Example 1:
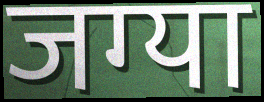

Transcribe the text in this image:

जग्या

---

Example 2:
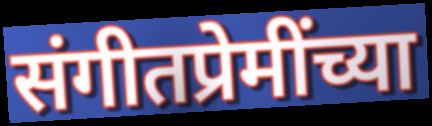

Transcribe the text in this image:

संगीतप्रेमींच्या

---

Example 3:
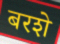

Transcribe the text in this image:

बरशे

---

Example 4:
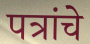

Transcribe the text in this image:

पत्रांचे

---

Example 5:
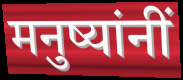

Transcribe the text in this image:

मनुष्यांनीं